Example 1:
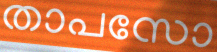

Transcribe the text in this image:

താപസോ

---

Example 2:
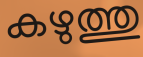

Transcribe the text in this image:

കഴുത്തു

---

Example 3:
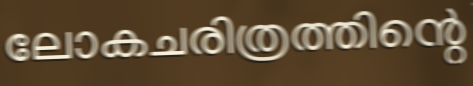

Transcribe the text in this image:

ലോകചരിത്രത്തിന്റെ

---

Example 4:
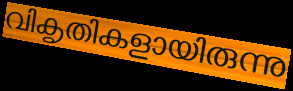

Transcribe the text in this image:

വികൃതികളായിരുന്നു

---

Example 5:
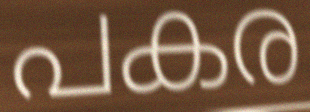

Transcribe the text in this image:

പകര